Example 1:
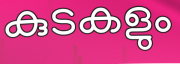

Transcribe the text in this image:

കുടകളും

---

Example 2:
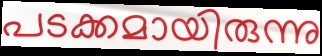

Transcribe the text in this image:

പടക്കമായിരുന്നു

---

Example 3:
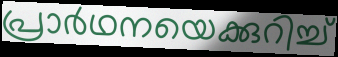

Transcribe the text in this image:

പ്രാർഥനയെക്കുറിച്ച്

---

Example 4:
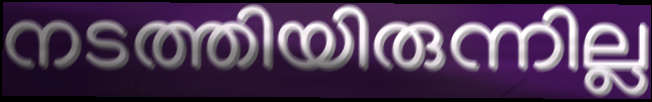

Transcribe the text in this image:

നടത്തിയിരുന്നില്ല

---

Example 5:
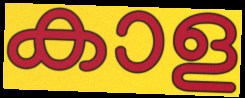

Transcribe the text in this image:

കാള